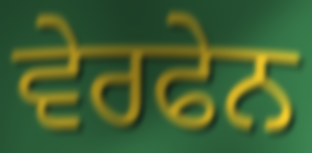
ਵੇਰਫੇਨ